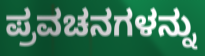
ಪ್ರವಚನಗಳನ್ನು